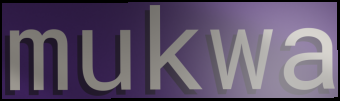
mukwa